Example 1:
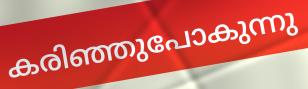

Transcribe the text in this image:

കരിഞ്ഞുപോകുന്നു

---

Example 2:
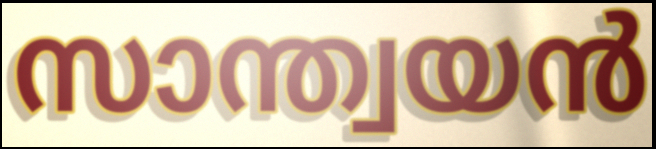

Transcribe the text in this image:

സാന്ത്വയൻ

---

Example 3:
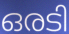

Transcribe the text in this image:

ഒരടി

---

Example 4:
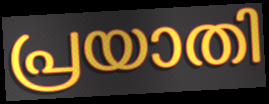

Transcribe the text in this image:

പ്രയാതി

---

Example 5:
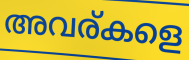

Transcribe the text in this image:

അവര്കളെ